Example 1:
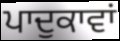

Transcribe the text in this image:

ਪਾਦੁਕਾਵਾਂ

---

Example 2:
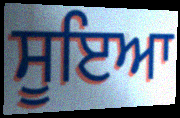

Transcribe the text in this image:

ਸੂਇਆ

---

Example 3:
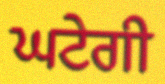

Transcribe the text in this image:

ਘਟੇਗੀ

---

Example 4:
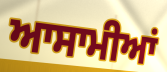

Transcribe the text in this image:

ਆਸਾਮੀਆਂ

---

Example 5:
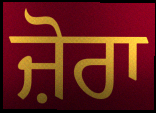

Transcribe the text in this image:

ਜ਼ੋਰਾ